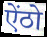
ऐंठो